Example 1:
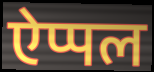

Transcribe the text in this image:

ऐप्पल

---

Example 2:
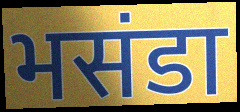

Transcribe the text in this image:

भसंडा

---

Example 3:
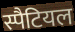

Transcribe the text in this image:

स्पैटियल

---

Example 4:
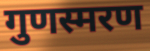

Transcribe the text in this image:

गुणस्मरण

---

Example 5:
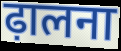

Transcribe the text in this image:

ढ़ालना